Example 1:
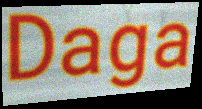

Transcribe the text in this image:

Daga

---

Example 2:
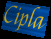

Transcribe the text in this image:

Cipla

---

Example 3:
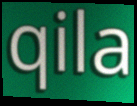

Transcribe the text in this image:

qila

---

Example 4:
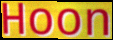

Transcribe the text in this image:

Hoon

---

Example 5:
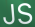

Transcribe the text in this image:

JS